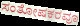
ಸಂತೋಷಕರವೂ